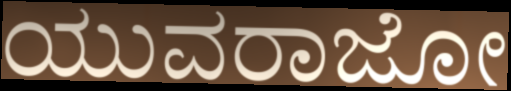
ಯುವರಾಜೋ